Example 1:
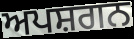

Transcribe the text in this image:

ਅਪਸ਼ਗਨ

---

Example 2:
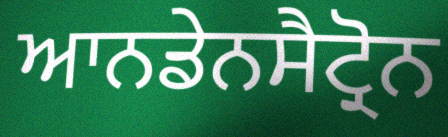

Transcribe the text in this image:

ਆਨਡੇਨਸੈਟ੍ਰੋਨ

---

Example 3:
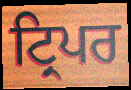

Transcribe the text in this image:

ਟ੍ਰਿਪਰ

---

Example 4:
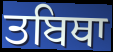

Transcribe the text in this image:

ਤਬਿਥਾ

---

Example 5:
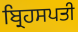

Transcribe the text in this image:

ਬ੍ਰਿਹਸਪਤੀ